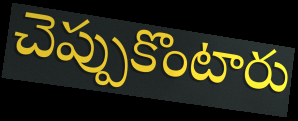
చెప్పుకొంటారు